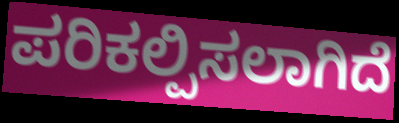
ಪರಿಕಲ್ಪಿಸಲಾಗಿದೆ